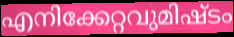
എനിക്കേറ്റവുമിഷ്ടം